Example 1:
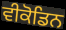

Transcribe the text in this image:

ਵੀਕੋਡਿਨ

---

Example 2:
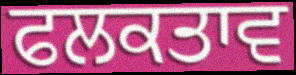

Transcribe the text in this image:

ਫਲਕਤਾਵ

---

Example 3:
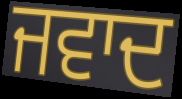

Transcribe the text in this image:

ਜਵਾਦ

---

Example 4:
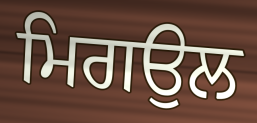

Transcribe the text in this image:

ਮਿਗਉਲ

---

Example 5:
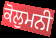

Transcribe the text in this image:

ਕੋਲੁਮਨੀ